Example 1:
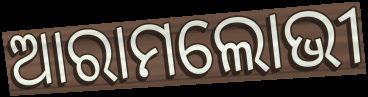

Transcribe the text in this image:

ଆରାମଲୋଭୀ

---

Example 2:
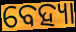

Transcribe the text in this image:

ବେହ୍ୟା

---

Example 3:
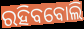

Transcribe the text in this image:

ରହିବବୋଲି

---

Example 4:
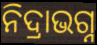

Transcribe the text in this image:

ନିଦ୍ରାଭଗ୍ନ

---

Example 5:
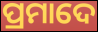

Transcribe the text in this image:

ପ୍ରମାଦେ